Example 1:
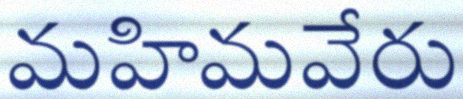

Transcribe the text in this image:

మహిమవేరు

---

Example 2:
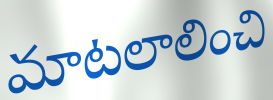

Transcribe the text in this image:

మాటలాలించి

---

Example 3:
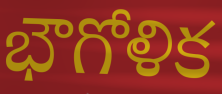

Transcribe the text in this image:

భౌగోళిక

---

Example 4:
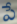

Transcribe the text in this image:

పే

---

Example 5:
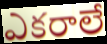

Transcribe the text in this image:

ఎకరాలే